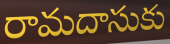
రామదాసుకు